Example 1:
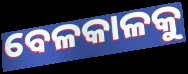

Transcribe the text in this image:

ବେଳକାଳକୁ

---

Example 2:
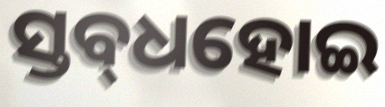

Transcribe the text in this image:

ସ୍ତବ୍‌ଧହୋଇ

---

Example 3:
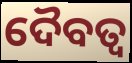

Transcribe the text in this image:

ଦୈବତ୍ଵ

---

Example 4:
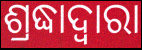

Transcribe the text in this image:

ଶ୍ରଦ୍ଧାଦ୍ୱାରା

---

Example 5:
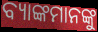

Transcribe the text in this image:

ବ୍ୟାଙ୍କମାନଙ୍କୁ